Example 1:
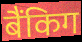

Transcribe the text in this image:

बैंकिग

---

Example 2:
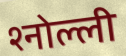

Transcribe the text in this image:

श्नोल्ली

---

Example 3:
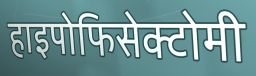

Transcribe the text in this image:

हाइपोफिसेक्टोमी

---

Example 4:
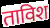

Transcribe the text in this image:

ताविश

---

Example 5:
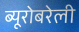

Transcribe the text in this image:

ब्यूरोबरेली